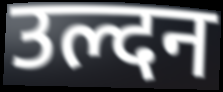
उल्दन